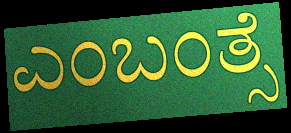
ಎಂಬಂತ್ಸೆ